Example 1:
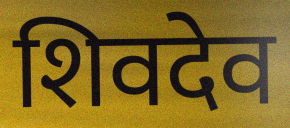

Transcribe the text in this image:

शिवदेव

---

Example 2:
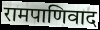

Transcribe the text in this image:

रामपाणिवाद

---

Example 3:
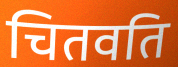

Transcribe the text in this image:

चितवति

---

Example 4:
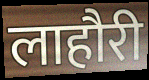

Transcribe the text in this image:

लाहौरी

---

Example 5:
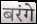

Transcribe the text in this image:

बरंगे